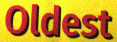
Oldest